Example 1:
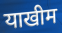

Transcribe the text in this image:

याखीम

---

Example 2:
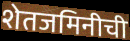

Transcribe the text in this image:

शेतजमिनीची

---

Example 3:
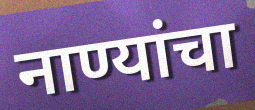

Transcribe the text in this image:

नाण्यांचा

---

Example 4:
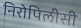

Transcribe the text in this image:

निरोपिलीसी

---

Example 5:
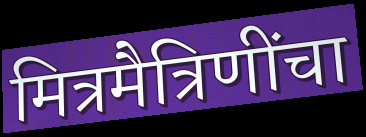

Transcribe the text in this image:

मित्रमैत्रिणींचा